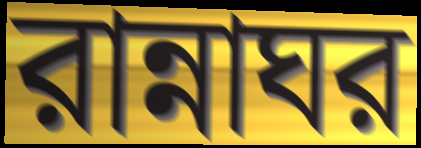
রান্নাঘর